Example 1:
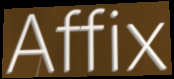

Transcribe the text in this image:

Affix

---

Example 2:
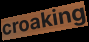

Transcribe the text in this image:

croaking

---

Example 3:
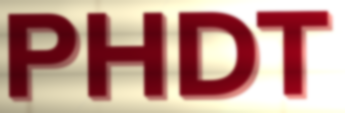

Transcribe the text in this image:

PHDT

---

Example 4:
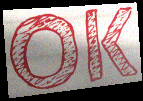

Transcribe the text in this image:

OK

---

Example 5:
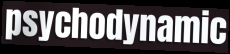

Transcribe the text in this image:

psychodynamic